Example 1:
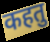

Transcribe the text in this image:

कहतु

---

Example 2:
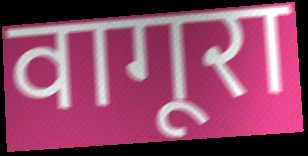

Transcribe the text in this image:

वागूरा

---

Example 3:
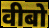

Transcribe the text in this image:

वीबो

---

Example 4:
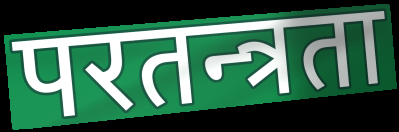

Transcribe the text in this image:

परतन्त्रता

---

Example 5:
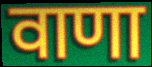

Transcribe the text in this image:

वाणा